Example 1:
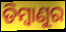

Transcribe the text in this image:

ଡିମ୍ବାଣୁର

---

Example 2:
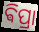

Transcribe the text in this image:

ଵିପ୍ରା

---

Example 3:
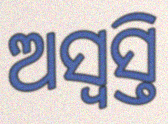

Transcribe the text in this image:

ଅସ୍ୱସ୍ତି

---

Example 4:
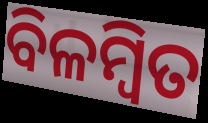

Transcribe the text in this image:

ବିଳମ୍ବିତ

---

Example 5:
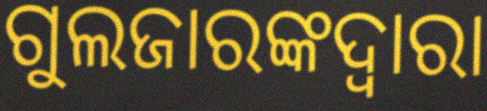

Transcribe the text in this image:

ଗୁଲଜାରଙ୍କଦ୍ୱାରା